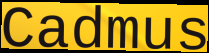
Cadmus